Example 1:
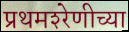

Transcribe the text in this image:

प्रथमश्रेणीच्या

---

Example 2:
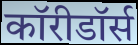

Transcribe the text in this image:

कॉरीडॉर्स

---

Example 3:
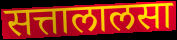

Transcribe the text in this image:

सत्तालालसा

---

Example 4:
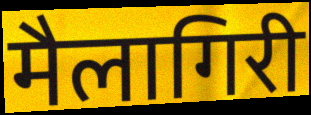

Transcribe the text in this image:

मैलागिरी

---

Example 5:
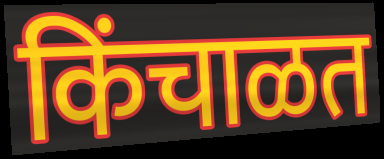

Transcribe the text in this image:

किंचाळत